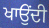
ਖਾਉਂਦੀ